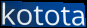
kotota